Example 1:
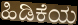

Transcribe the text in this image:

ಹಿಡಿಕೆಯ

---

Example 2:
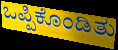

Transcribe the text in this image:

ಒಪ್ಪಿಕೊಂಡಿತು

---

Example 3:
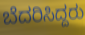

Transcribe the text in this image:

ಬೆದರಿಸಿದ್ದರು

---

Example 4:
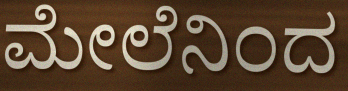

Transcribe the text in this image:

ಮೇಲೆನಿಂದ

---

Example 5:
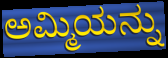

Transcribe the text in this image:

ಅಮ್ಮಿಯನ್ನು